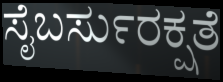
ಸೈಬರ್ಸುರಕ್ಷತೆ